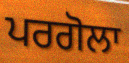
ਪਰਗੋਲਾ